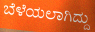
ಬೆಳೆಯಲಾಗಿದ್ದು